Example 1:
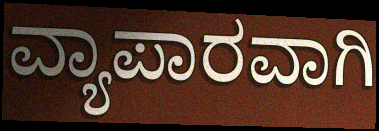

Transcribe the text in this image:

ವ್ಯಾಪಾರವಾಗಿ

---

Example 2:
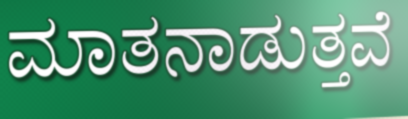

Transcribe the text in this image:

ಮಾತನಾಡುತ್ತವೆ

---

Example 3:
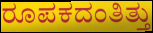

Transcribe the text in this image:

ರೂಪಕದಂತಿತ್ತು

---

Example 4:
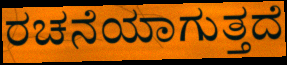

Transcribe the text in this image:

ರಚನೆಯಾಗುತ್ತದೆ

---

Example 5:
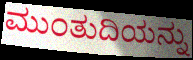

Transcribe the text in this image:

ಮುಂತುದಿಯನ್ನು